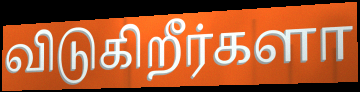
விடுகிறீர்களா